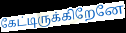
கேட்டிருக்கிறேனே